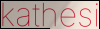
kathesi